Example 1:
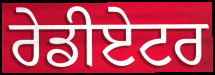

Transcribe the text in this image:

ਰੇਡੀਏਟਰ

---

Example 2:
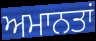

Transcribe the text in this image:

ਅਮਾਨਤਾਂ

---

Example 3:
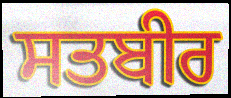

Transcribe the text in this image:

ਸਤਬੀਰ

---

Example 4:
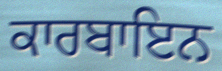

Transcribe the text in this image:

ਕਾਰਬਾਇਨ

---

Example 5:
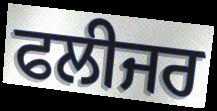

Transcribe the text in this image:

ਫਲੀਜਰ